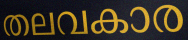
തലവകാര